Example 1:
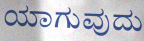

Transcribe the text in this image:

ಯಾಗುವುದು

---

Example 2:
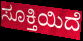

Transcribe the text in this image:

ಸೂಕ್ತಿಯಿದೆ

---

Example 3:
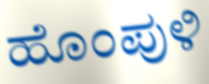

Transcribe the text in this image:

ಹೊಂಪುಳಿ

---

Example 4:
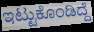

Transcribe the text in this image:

ಇಟ್ಟುಕೊಂಡಿದ್ದೆ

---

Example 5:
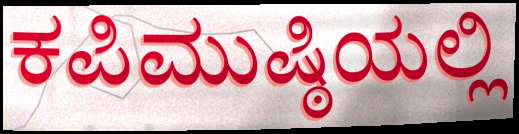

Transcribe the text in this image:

ಕಪಿಮುಷ್ಠಿಯಲ್ಲಿ